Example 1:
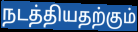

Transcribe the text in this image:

நடத்தியதற்கும்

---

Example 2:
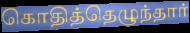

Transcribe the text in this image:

கொதித்தெழுந்தார்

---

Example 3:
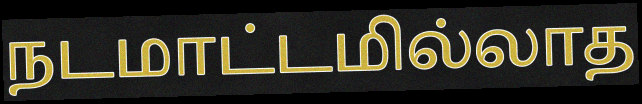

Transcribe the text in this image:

நடமாட்டமில்லாத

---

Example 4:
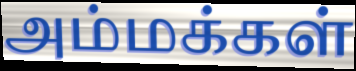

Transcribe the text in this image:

அம்மக்கள்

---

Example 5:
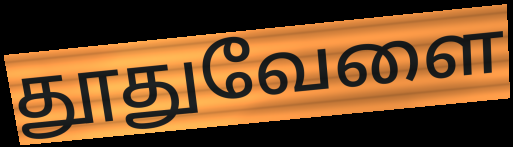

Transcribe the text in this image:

தூதுவேளை